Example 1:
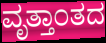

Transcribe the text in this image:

ವೃತ್ತಾಂತದ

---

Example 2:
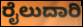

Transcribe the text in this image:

ರೈಲುದಾರಿ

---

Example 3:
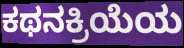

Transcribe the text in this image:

ಕಥನಕ್ರಿಯೆಯ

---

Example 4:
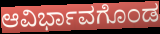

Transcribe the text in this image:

ಆವಿರ್ಭಾವಗೊಂಡ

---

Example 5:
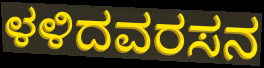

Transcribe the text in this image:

ಳಳಿದವರಸನ